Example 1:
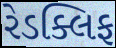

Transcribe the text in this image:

રેડક્લિફ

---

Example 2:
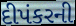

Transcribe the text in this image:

દીપંકરની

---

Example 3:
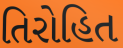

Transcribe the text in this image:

તિરોહિત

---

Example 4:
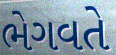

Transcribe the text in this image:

ભેગવતે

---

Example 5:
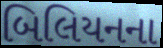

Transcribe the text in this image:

બિલિયનના